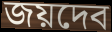
জয়দেব